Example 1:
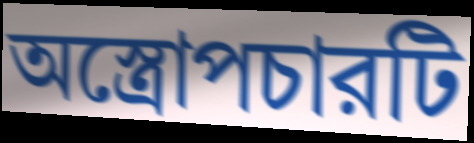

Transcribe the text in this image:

অস্ত্রোপচারটি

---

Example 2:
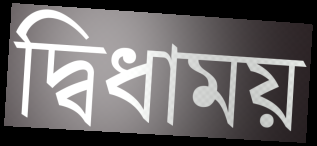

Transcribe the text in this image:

দ্বিধাময়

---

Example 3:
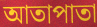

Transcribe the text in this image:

আতাপাতা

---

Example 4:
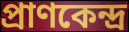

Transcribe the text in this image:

প্রাণকেন্দ্র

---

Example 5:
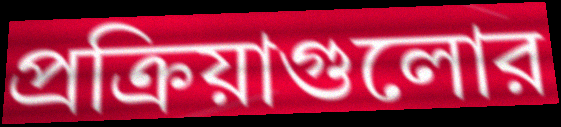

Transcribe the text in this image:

প্রক্রিয়াগুলোর